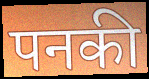
पनकी